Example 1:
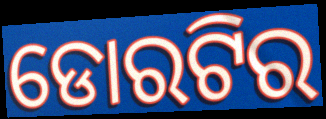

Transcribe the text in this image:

ଡୋରଟିର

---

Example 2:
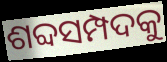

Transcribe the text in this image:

ଶବ୍ଦସମ୍ପଦକୁ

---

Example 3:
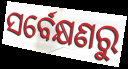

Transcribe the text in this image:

ସର୍ବେକ୍ଷଣରୁ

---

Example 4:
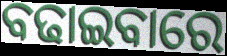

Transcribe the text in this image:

ବଢାଇବାରେ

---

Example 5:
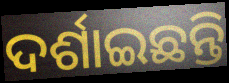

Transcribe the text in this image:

ଦର୍ଶାଇଛନ୍ତି